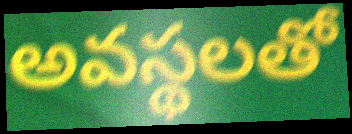
అవస్థలతో